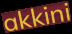
akkini